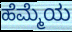
ಹೆಮ್ಮೆಯ